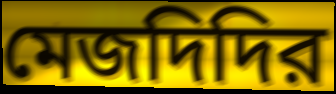
মেজদিদির